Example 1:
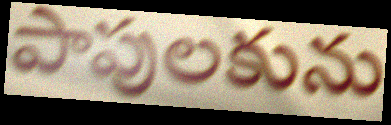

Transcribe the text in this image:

పాపులకును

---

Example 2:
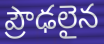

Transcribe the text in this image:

ప్రౌఢలైన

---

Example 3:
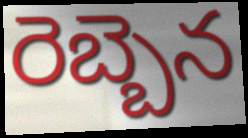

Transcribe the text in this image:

రెబ్బెన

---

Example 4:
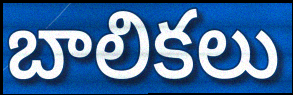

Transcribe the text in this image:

బాలికలు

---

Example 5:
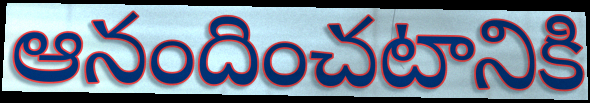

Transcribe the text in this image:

ఆనందించటానికి